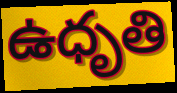
ఉధృతి